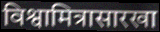
विश्वामित्रासारखा